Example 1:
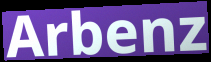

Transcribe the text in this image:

Arbenz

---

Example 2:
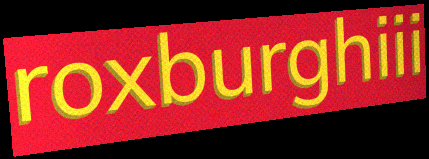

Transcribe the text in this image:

roxburghiii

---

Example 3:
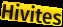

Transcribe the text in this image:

Hivites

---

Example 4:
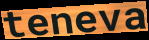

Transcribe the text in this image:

teneva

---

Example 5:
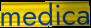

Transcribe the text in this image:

medica